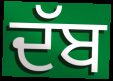
ਦੱਬ